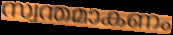
സ്വന്തമാകണം